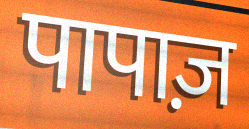
पापाज़